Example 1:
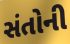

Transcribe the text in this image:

સંતોની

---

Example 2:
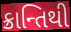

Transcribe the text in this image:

ક્રાન્તિથી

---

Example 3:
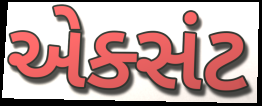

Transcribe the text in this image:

એક્સંટ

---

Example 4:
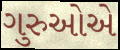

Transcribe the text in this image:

ગુરુઓએ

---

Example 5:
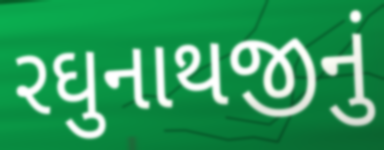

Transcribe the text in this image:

રઘુનાથજીનું